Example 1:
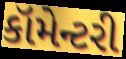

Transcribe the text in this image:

કૉમેન્ટરી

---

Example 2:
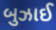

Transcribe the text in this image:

બુઝાઈ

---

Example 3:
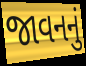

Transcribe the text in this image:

જાવનનું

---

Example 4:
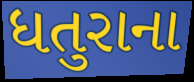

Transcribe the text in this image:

ધતુરાના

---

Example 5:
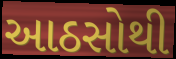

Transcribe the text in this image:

આઠસોથી